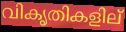
വികൃതികളില്